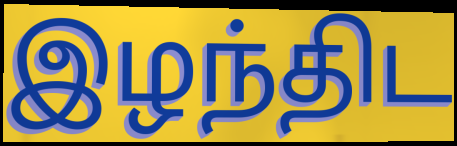
இழந்திட